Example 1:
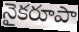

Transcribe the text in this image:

నైకరూపా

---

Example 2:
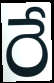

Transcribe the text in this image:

రే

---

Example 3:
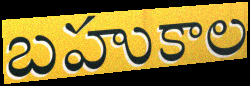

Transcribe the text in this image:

బహుకాల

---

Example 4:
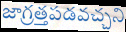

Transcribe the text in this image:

జాగ్రత్తపడవచ్చని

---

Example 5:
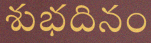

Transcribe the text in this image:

శుభదినం